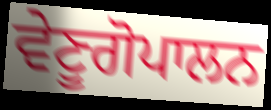
ਵੇਣੂਗੋਪਾਲਨ